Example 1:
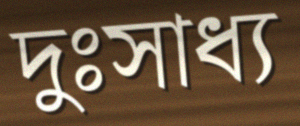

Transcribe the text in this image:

দুঃসাধ্য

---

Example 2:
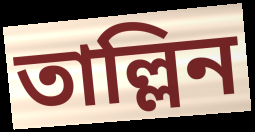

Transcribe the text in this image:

তাল্লিন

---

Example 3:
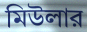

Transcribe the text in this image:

মিউলার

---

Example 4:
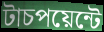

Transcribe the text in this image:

টাচপয়েন্টে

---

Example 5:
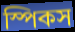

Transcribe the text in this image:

স্পিকস